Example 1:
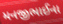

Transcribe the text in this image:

મનજીભાઈના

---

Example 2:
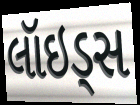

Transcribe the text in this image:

લૉઇડ્સ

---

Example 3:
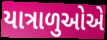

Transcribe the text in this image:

યાત્રાળુઓએ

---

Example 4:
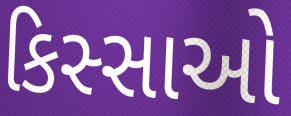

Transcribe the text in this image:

કિસ્સાઓ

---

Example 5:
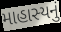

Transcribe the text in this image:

માહાસ્યનું